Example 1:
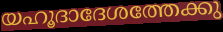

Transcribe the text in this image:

യഹൂദാദേശത്തേക്കു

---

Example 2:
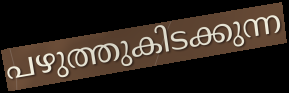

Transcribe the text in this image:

പഴുത്തുകിടക്കുന്ന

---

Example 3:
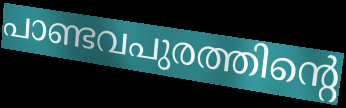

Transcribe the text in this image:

പാണ്ടവപുരത്തിന്റെ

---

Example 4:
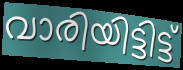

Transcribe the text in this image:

വാരിയിട്ടിട്ട്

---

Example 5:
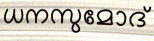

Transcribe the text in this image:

ധനസുമോദ്